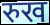
रुख